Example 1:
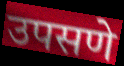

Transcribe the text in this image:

उपसणे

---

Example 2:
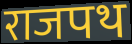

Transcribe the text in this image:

राजपथ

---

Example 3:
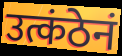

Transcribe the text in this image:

उत्कंठेनं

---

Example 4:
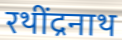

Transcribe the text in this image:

रथींद्रनाथ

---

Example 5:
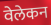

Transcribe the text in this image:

वेलेकन